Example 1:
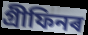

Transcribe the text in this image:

গ্ৰীফিনৰ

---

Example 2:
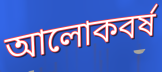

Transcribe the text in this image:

আলোকবৰ্ষ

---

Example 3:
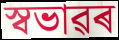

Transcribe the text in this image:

স্বভাৱৰ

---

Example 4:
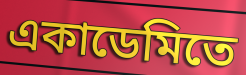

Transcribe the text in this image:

একাডেমিতে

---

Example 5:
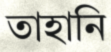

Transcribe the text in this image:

তাহানি